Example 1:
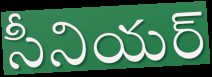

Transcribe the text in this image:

సీనియర్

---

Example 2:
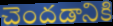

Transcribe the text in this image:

చెందడానికి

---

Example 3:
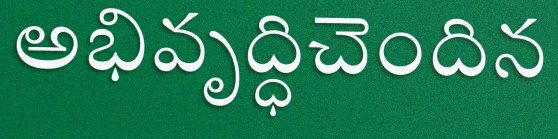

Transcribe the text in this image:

అభివృద్ధిచెందిన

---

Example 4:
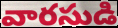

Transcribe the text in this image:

వారసుడి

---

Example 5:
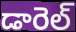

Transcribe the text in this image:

డారెల్